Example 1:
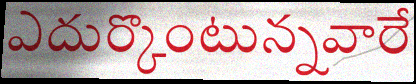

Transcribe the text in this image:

ఎదుర్కొంటున్నవారే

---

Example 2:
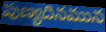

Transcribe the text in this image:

పుణ్యదినమున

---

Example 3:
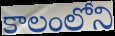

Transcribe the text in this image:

కాలంలోని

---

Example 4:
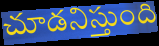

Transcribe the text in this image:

చూడనిస్తుంది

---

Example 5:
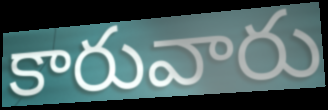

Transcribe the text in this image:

కారువారు